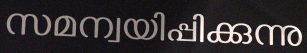
സമന്വയിപ്പിക്കുന്നു